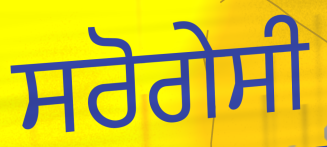
ਸਰੋਗੇਸੀ